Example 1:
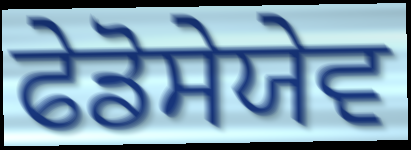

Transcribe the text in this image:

ਫੇਡੋਸੇਯੇਵ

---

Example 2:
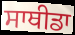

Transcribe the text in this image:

ਸਾਥੀਡਾ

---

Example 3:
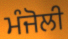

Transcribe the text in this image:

ਮੰਜੋਲੀ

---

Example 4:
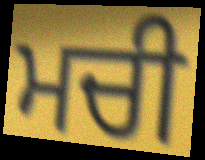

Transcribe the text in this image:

ਮਚੀ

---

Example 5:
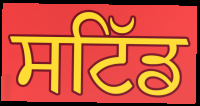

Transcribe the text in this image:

ਸਟਿੱਡ